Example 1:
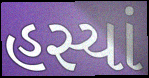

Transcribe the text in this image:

હસ્યાં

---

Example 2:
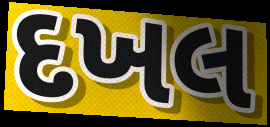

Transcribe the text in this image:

દખલ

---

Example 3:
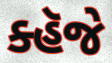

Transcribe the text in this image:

ક્હૅજે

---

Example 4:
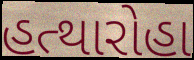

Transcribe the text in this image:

હત્થારોહા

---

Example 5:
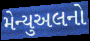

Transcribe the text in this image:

મેન્યુઅલનો